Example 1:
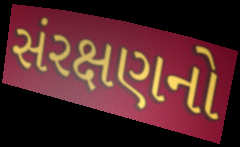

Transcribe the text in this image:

સંરક્ષણનો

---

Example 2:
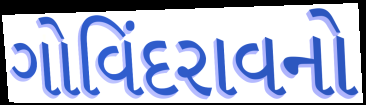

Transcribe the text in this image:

ગોવિંદરાવનો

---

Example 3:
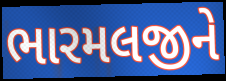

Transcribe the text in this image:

ભારમલજીને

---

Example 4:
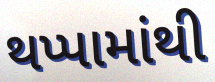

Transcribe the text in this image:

થપ્પામાંથી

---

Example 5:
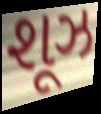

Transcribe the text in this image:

શૂઝ